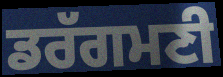
ਡਰੱਗਮਣੀ